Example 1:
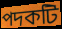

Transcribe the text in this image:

পদকটি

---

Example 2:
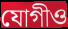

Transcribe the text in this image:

যোগীও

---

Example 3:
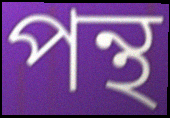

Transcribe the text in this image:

পন্থ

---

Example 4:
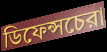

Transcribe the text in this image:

ডিফেন্সচেরা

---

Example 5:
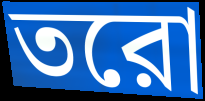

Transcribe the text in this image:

তরো